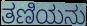
ತಣಿಯನು